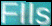
FIIs